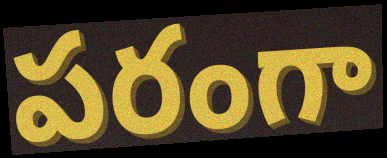
పరంగా